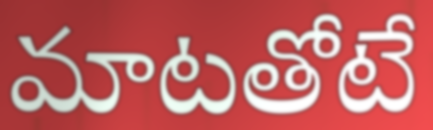
మాటతోటే